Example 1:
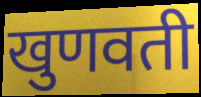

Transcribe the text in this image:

खुणवती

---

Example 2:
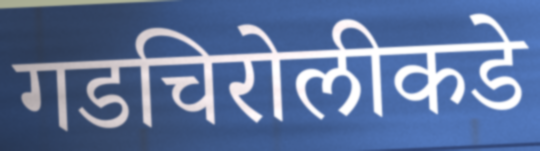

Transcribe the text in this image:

गडचिरोलीकडे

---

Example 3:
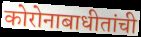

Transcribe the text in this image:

कोरोनाबाधीतांची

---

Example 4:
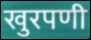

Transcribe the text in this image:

खुरपणी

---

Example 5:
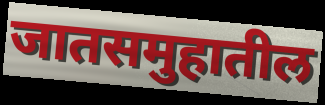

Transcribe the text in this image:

जातसमुहातील